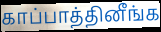
காப்பாத்தினீங்க